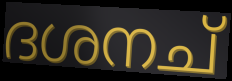
ദശനച്